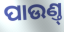
ପାଉଣ୍ତ୍